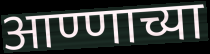
आण्णाच्या